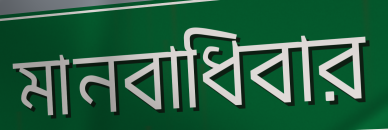
মানবাধিবার